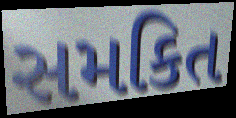
સમકિત